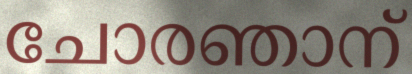
ചോരഞാന്